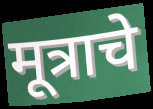
मूत्राचे